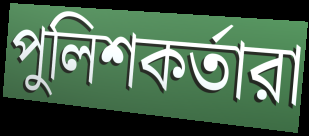
পুলিশকর্তারা